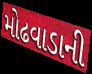
મોઢવાડાની